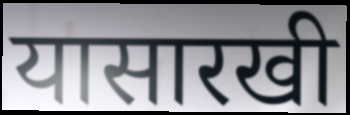
यासारखी